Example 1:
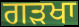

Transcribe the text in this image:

ਗੜਖਾ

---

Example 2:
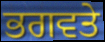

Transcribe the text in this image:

ਭਗਵਤੇ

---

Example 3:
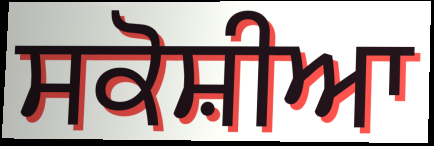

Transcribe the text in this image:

ਸਕੋਸ਼ੀਆ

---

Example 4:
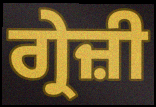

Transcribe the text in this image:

ਗ੍ਰੇਜ਼ੀ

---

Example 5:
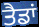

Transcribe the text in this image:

ਤੈਡਾਂ